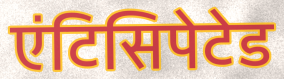
एंटिसिपेटेड